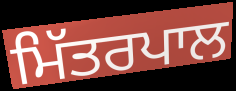
ਮਿੱਤਰਪਾਲ